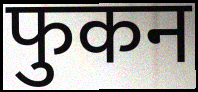
फुकन